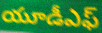
యూడీఎఫ్